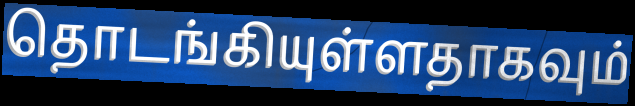
தொடங்கியுள்ளதாகவும்